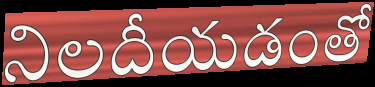
నిలదీయడంతో